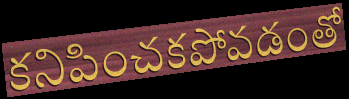
కనిపించకపోవడంతో